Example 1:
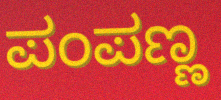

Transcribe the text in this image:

ಪಂಪಣ್ಣ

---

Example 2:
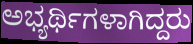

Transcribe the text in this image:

ಅಭ್ಯರ್ಥಿಗಳಾಗಿದ್ದರು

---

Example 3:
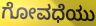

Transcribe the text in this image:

ಗೋವಧೆಯು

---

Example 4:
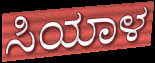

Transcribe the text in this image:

ಸಿಯಾಳ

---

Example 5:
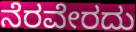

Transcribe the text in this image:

ನೆರವೇರದು